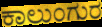
ಕಾಲುಂಗುರ